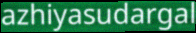
azhiyasudargal